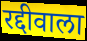
रद्दीवाला